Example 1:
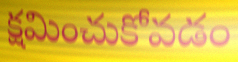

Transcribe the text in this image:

క్షమించుకోవడం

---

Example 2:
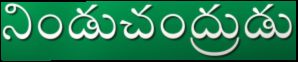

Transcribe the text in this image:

నిండుచంద్రుడు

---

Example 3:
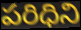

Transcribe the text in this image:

పరిధిని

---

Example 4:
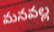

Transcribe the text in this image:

మనవల్ల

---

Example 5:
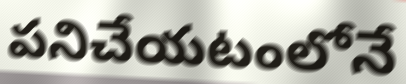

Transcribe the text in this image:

పనిచేయటంలోనే